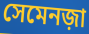
সেমেনজ়া